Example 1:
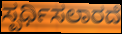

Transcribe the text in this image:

ಸ್ಪರ್ಧಿಸಲಾರದೆ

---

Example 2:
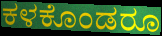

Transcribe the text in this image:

ಕಳಕೊಂಡರೂ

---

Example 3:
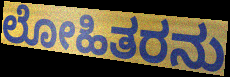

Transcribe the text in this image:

ಲೋಹಿತರನು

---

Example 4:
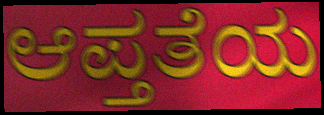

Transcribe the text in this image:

ಆಪ್ತತೆಯ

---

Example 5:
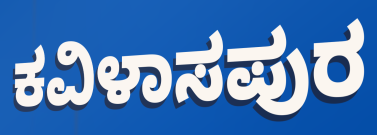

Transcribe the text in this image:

ಕವಿಳಾಸಪುರ